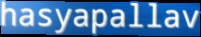
hasyapallav